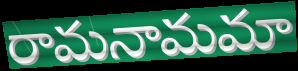
రామనామమా